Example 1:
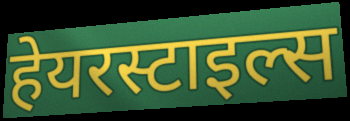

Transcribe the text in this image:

हेयरस्टाइल्स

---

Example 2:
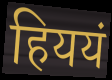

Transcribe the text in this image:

हिययं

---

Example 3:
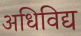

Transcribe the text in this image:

अधिविद्य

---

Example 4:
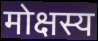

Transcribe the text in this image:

मोक्षस्य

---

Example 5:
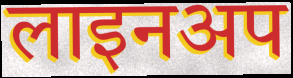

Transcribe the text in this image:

लाइनअप